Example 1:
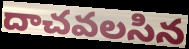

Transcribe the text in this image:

దాచవలసిన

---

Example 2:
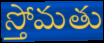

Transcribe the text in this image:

స్తోమతు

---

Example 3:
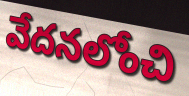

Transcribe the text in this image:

వేదనలోంచి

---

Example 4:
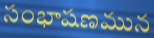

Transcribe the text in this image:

సంభాషణమున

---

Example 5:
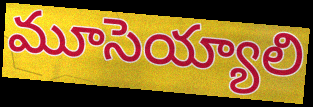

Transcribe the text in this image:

మూసెయ్యాలి